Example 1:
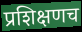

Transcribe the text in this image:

प्रशिक्षणच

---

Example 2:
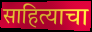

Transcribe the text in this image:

साहित्याचा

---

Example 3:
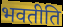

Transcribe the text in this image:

भवतीति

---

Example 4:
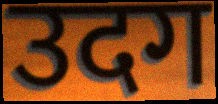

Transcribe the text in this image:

उदग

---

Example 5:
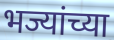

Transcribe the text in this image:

भज्यांच्या